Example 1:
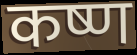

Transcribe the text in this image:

कष्ण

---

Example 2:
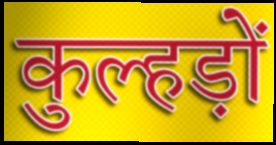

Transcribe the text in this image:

कुल्हड़ों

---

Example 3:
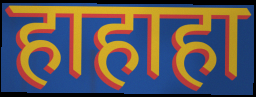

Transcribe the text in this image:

हाहाहा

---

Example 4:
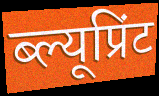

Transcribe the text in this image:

ब्ल्यूप्रिंट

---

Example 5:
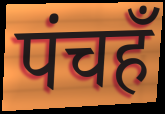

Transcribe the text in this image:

पंचहँ